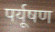
पर्यूषण